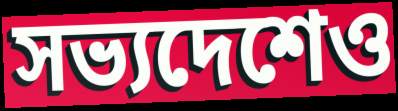
সভ্যদেশেও